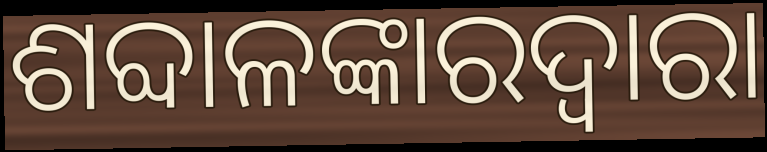
ଶବ୍ଦାଳଙ୍କାରଦ୍ୱାରା